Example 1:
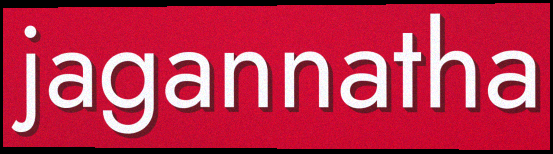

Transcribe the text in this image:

jagannatha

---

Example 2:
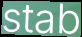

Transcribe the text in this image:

stab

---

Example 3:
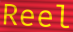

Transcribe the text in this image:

Reel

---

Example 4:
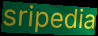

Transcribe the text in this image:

sripedia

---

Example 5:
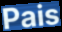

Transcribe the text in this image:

Pais